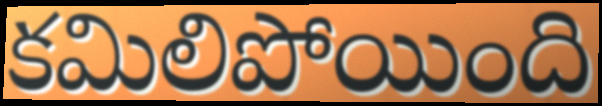
కమిలిపోయింది